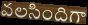
వలసిందిగా